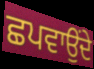
ਛਪਵਾਉਂਦੇ